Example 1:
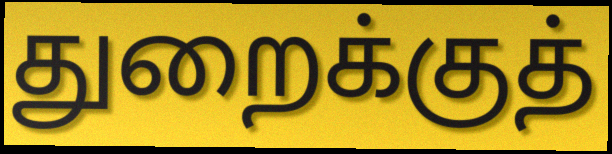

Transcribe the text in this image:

துறைக்குத்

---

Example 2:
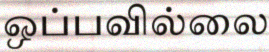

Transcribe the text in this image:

ஒப்பவில்லை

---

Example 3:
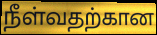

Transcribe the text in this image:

நீள்வதற்கான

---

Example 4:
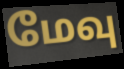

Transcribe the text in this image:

மேவு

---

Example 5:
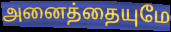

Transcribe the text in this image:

அனைத்தையுமே